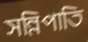
সন্নিপাতি